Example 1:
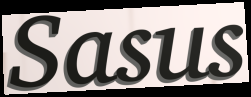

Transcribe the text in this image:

Sasus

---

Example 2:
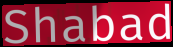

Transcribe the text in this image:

Shabad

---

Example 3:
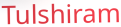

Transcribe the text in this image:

Tulshiram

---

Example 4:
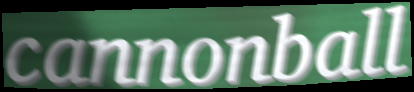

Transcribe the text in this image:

cannonball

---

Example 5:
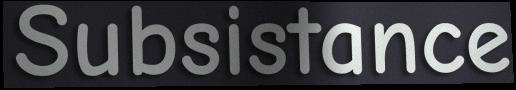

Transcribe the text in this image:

Subsistance